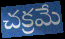
చక్రమే